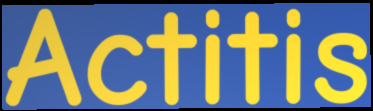
Actitis